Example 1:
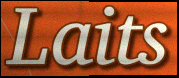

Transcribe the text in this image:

Laits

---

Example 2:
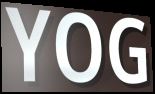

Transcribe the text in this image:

YOG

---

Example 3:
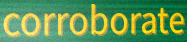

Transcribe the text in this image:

corroborate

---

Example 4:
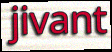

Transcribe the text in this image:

jivant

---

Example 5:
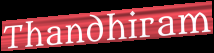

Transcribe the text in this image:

Thandhiram